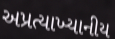
અપ્રત્યાખ્યાનીય